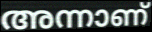
അന്നാണ്